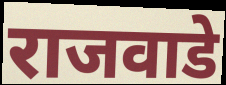
राजवाडे